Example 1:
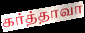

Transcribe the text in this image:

கர்த்தாவா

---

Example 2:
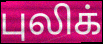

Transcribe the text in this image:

புலிக்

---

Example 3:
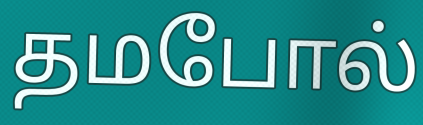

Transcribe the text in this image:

தமபோல்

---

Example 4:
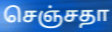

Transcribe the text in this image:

செஞ்சதா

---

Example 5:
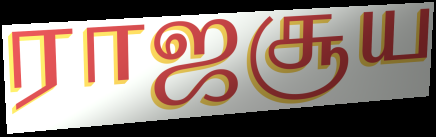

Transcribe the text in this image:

ராஜசூய